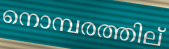
നൊമ്പരത്തില്